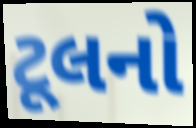
ટૂલનો